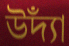
উদ্যাঁ